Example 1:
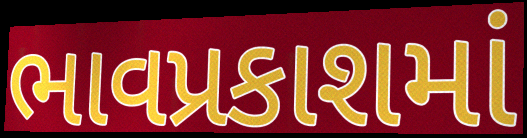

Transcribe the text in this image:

ભાવપ્રકાશમાં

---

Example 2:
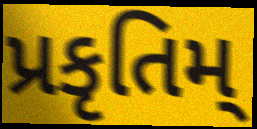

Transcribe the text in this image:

પ્રકૃતિમ્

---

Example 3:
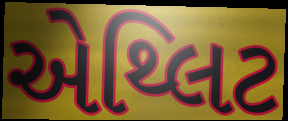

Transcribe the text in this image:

એથ્લિટ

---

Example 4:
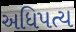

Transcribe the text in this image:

અધિપત્ય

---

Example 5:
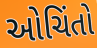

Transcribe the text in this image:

ઓચિંતો